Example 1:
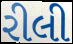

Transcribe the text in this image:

રીલી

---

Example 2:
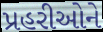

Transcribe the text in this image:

પ્રહરીઓને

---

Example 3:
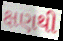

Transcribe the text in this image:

ક્ષણથી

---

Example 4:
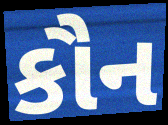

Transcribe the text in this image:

કૌન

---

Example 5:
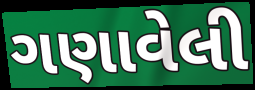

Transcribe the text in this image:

ગણાવેલી